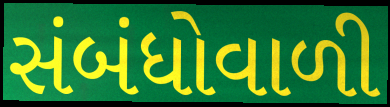
સંબંધોવાળી